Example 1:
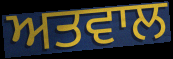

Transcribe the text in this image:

ਅਤਵਾਲ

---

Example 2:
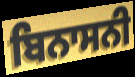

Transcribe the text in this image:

ਬਿਨਾਸਨੀ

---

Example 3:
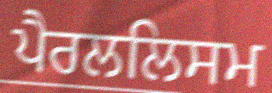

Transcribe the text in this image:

ਪੈਰਲਲਿਸਮ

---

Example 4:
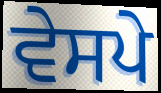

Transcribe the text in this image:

ਵੇਸਪੇ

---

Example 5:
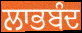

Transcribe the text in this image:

ਲਾਭਬੰਦ